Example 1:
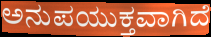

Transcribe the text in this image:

ಅನುಪಯುಕ್ತವಾಗಿದೆ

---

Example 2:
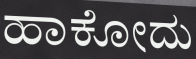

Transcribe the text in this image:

ಹಾಕೋದು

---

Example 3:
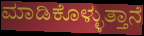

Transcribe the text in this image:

ಮಾಡಿಕೊಳ್ಳುತ್ತಾನೆ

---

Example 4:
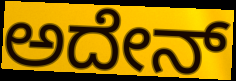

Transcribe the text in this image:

ಅದೇನ್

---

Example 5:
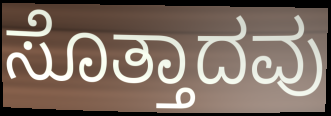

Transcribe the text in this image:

ಸೊತ್ತಾದವು